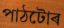
পাঠটোৰ